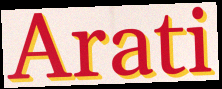
Arati